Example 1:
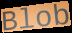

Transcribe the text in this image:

Blob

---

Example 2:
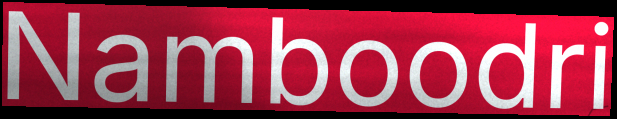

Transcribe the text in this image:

Namboodri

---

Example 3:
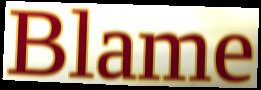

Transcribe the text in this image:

Blame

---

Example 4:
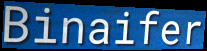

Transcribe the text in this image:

Binaifer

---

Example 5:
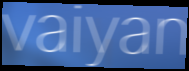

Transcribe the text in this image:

vaiyan